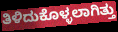
ತಿಳಿದುಕೊಳ್ಳಲಾಗಿತ್ತು